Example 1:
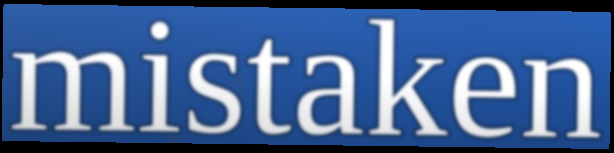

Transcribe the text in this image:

mistaken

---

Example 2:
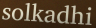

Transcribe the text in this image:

solkadhi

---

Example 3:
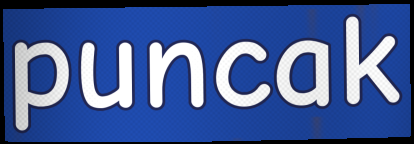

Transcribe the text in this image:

puncak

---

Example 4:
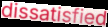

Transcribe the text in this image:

dissatisfied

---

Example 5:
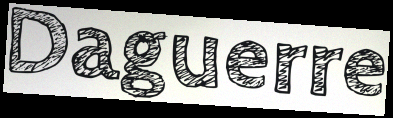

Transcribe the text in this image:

Daguerre